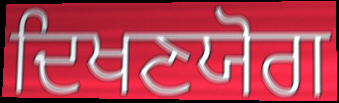
ਦਿਖਣਯੋਗ